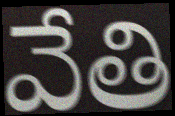
వేతి